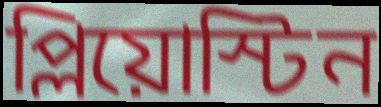
প্লিয়োস্টিন